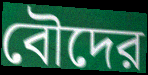
বৌদের